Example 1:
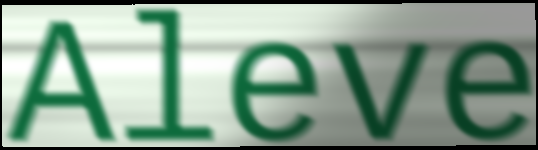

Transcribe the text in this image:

Aleve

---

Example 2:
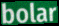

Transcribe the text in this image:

bolar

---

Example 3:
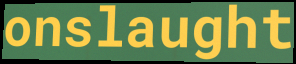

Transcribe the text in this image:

onslaught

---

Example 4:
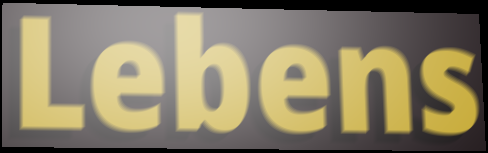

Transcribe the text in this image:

Lebens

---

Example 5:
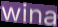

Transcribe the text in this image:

wina